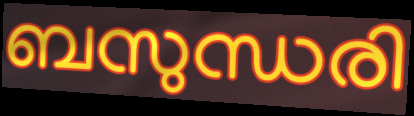
ബസുന്ധരി